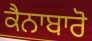
ਕੈਨਾਬਾਰੋ